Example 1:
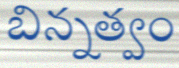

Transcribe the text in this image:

బిన్నత్వం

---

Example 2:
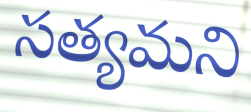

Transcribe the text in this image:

సత్యమని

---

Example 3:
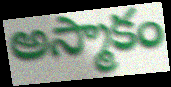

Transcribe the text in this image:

అస్మాకం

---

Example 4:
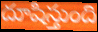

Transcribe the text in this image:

దూషిస్తుంది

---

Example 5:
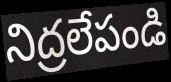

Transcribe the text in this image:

నిద్రలేపండి